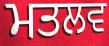
ਮਤਲਵ